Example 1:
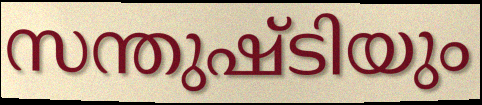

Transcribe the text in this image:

സന്തുഷ്ടിയും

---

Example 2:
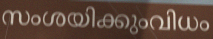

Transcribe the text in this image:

സംശയിക്കുംവിധം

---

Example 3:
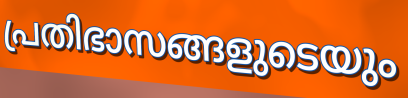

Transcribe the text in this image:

പ്രതിഭാസങ്ങളുടെയും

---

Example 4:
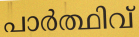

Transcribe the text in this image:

പാർത്ഥിവ്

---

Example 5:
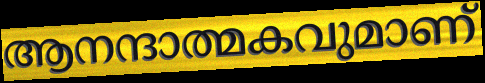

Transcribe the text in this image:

ആനന്ദാത്മകവുമാണ്